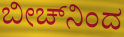
ಬೀಚ್‌ನಿಂದ